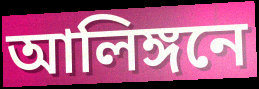
আলিঙ্গনে